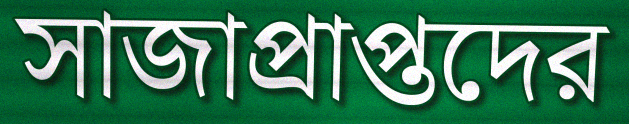
সাজাপ্রাপ্তদের